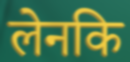
लेनकि